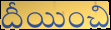
దీయించి